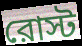
রোস্ট